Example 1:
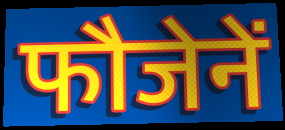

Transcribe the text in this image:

फौजेनें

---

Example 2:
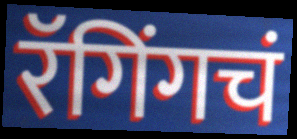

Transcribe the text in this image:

रॅगिंगचं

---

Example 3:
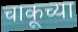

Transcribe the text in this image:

चाकूच्या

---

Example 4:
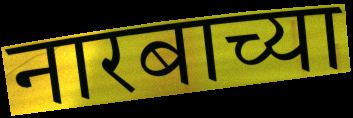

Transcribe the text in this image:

नारबाच्या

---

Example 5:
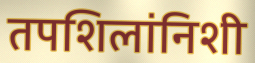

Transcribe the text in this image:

तपशिलांनिशी